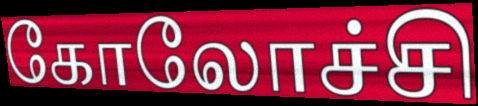
கோலோச்சி